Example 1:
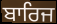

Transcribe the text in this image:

ਬਾਰਿਜ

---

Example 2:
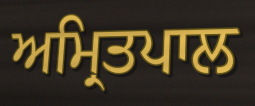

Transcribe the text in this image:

ਅਮ੍ਰਿਤਪਾਲ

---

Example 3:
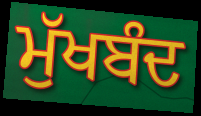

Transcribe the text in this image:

ਮੁੱਖਬੰਦ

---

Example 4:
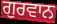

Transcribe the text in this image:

ਗੁਰਵਾਨ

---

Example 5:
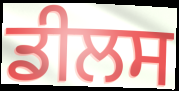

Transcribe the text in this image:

ਡੀਲਸ